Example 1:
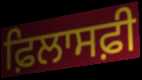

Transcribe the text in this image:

ਫ਼ਿਲਾਸਫ਼ੀ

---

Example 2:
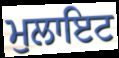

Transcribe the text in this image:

ਮੁਲਾਇਟ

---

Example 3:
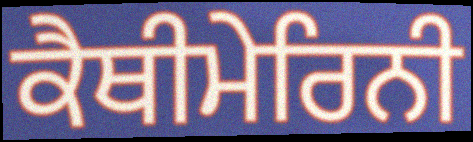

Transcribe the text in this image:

ਕੈਥੀਮੇਰਿਨੀ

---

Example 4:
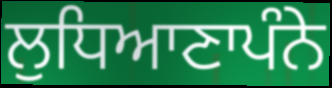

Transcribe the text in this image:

ਲੁਧਿਆਣਾਪੰਨੇ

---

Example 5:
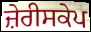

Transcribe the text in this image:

ਜ਼ੇਰੀਸਕੇਪ